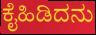
ಕೈಹಿಡಿದನು